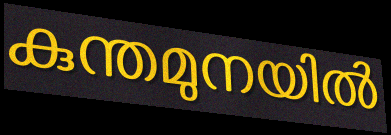
കുന്തമുനയിൽ